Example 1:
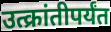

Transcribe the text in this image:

उत्क्रांतीपर्यंत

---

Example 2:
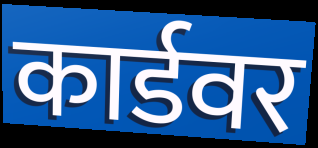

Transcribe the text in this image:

कार्डवर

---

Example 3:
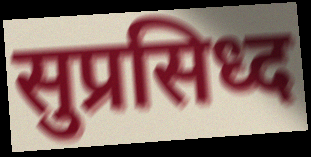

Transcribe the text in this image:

सुप्रसिध्द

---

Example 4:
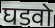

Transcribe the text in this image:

घडवो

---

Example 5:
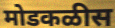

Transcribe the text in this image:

मोडकळीस